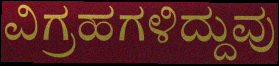
ವಿಗ್ರಹಗಳಿದ್ದುವು